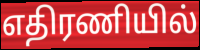
எதிரணியில்